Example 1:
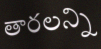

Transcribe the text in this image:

తారలన్ని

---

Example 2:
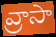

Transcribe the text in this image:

వ్రాసా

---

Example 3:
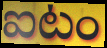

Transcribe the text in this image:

ఐటం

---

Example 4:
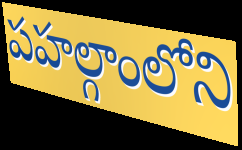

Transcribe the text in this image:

పహల్గాంలోని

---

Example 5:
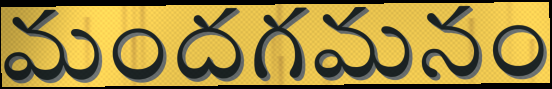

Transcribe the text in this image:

మందగమనం